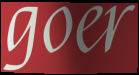
goer